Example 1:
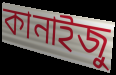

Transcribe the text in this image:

কানাইজু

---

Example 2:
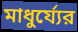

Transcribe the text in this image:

মাধুর্য্যের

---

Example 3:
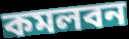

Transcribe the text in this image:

কমলবন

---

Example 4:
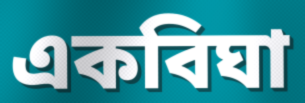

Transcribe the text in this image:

একবিঘা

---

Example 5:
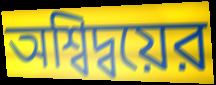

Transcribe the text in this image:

অশ্বিদ্বয়ের